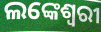
ଲଙ୍କେଶ୍ୱରୀ